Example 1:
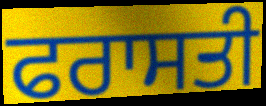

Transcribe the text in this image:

ਫਰਾਸਤੀ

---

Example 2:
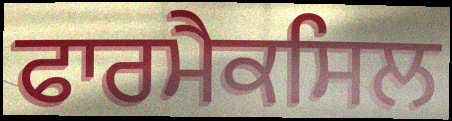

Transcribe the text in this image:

ਫਾਰਮੈਕਸਿਲ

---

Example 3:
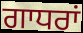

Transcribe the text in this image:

ਗਾਧਰਾਂ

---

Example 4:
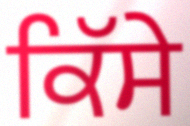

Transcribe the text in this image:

ਕਿੱਸੇ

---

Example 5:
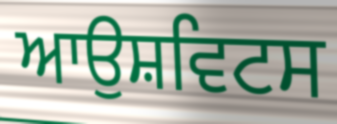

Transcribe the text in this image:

ਆਉਸ਼ਵਿਟਸ